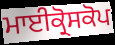
ਮਾਈਕ੍ਰੋਸਕੋਪ